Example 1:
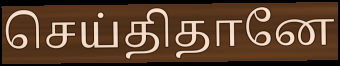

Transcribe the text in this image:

செய்திதானே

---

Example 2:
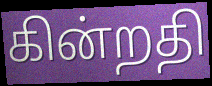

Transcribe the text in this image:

கின்றதி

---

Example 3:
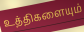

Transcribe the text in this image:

உத்திகளையும்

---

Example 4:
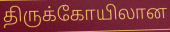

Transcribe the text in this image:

திருக்கோயிலான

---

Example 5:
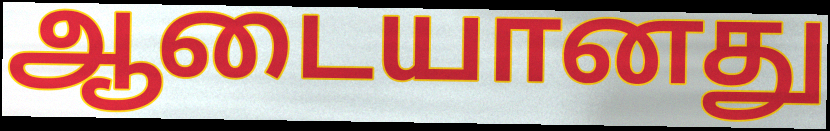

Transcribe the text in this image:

ஆடையானது